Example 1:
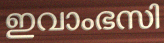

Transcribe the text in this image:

ഇവാംഭസി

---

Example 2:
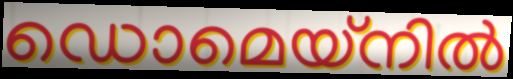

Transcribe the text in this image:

ഡൊമെയ്നിൽ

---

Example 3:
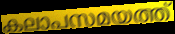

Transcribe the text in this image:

കലാപസമയത്ത്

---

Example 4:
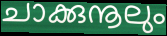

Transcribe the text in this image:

ചാക്കുനൂലും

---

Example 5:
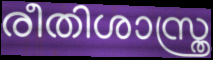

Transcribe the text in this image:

രീതിശാസ്ത്ര